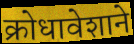
क्रोधावेशाने